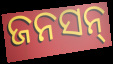
ଜନସନ୍